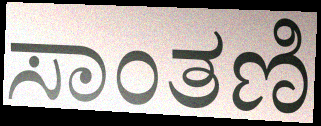
ಸಾಂತಣಿ